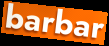
barbar